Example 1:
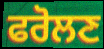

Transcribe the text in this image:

ਫਰੋਲਣ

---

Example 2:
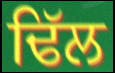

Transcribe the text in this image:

ਢਿੱਲ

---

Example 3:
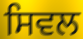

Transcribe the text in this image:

ਸਿਵਲ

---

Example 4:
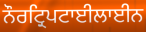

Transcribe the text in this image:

ਨੌਰਟ੍ਰਿਪਟਾਈਲਾਈਨ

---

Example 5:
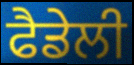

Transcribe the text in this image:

ਫੈਡੇਲੀ